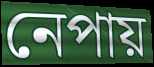
নেপায়